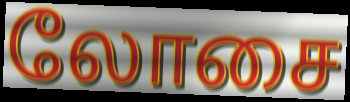
லோசை